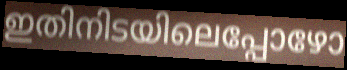
ഇതിനിടയിലെപ്പോഴോ